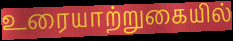
உரையாற்றுகையில்